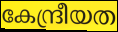
കേന്ദ്രീയത